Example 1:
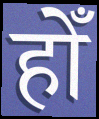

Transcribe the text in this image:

होँ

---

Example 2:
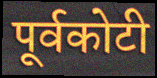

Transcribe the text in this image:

पूर्वकोटी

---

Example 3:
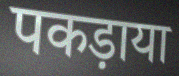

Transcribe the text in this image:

पकड़ाया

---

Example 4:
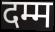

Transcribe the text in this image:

दम्म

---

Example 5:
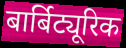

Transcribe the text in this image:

बार्बिट्यूरिक